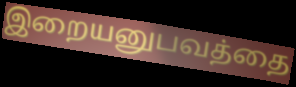
இறையனுபவத்தை